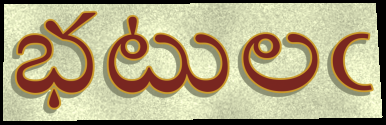
భటులఁ